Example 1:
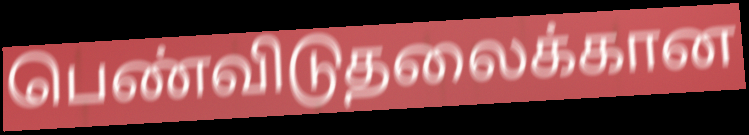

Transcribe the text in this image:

பெண்விடுதலைக்கான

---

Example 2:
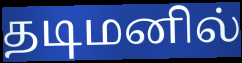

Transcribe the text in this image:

தடிமனில்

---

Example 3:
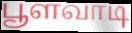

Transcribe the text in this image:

பூளவாடி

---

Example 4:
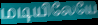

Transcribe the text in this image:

மடியிலேயே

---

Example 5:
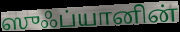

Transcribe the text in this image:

ஸுஃப்யானின்